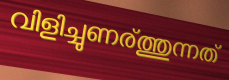
വിളിച്ചുണര്ത്തുന്നത്